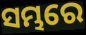
ସମ୍ଭରେ